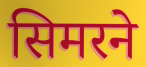
सिमरने